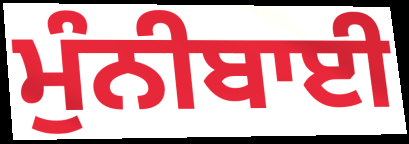
ਮੁੰਨੀਬਾਈ